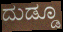
ದುಡ್ಡೂ